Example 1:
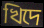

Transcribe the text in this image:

খিদে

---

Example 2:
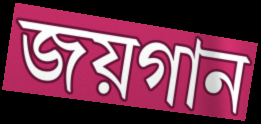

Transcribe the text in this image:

জয়গান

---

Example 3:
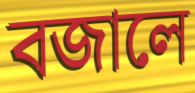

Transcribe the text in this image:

বজালে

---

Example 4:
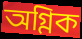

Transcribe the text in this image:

অগ্নিক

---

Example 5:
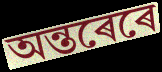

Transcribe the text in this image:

অন্তৰেৰে